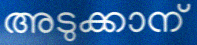
അടുക്കാന്